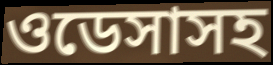
ওডেসাসহ